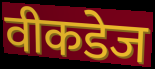
वीकडेज